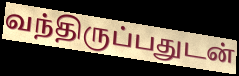
வந்திருப்பதுடன்